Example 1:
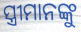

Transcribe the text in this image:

ସ୍ତ୍ରୀମାନଙ୍କୁ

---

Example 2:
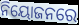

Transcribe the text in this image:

ନିୟୋଜନରେ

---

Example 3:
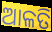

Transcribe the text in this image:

ଆଳତି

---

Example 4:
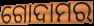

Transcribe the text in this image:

ଗୋଦାମର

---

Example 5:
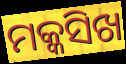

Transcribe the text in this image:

ମକ୍କସିଖ